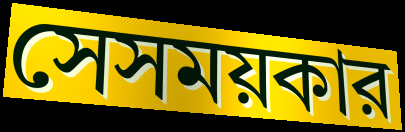
সেসময়কার